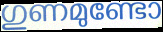
ഗുണമുണ്ടോ